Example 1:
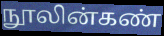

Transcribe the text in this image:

நூலின்கண்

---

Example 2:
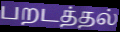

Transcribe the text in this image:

பறடத்தல்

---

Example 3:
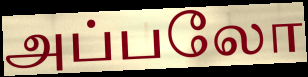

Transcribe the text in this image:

அப்பலோ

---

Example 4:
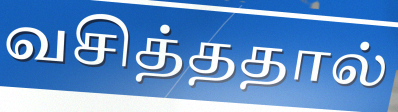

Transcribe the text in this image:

வசித்ததால்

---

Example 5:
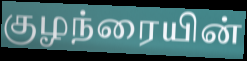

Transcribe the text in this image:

குழந்ரையின்